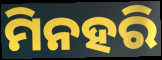
ମିନହରି